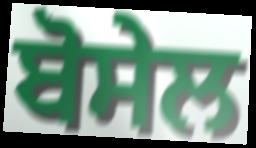
ਬੋਸੇਲ